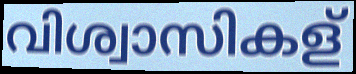
വിശ്വാസികള്